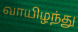
வாயிழந்து